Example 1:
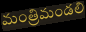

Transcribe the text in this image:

మంత్రిమండలి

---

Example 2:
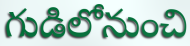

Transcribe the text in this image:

గుడిలోనుంచి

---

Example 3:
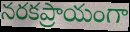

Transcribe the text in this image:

నరకప్రాయంగా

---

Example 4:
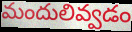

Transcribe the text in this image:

మందులివ్వడం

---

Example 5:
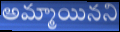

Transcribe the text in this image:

అమ్మాయినని